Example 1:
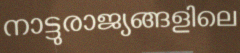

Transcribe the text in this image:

നാട്ടുരാജ്യങ്ങളിലെ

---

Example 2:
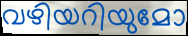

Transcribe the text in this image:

വഴിയറിയുമോ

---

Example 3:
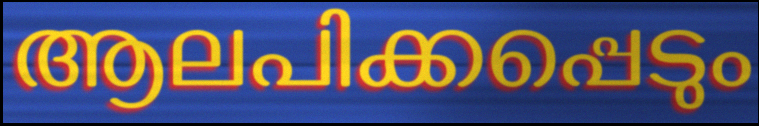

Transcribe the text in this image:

ആലപിക്കപ്പെടും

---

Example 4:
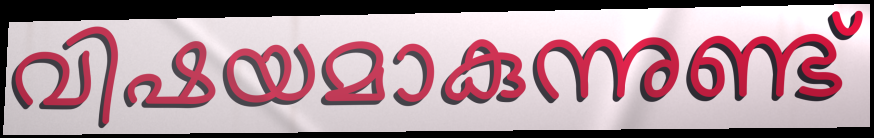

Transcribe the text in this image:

വിഷയമാകുന്നുണ്ട്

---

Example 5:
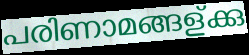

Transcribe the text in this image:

പരിണാമങ്ങള്ക്കു